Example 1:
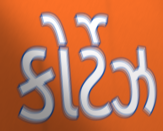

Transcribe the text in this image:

કોર્ટેઝ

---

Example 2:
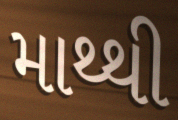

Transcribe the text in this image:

માથ્થી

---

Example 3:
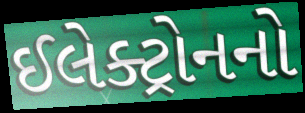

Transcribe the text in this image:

ઈલેક્ટ્રોનનો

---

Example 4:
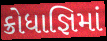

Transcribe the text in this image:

ક્રોધાજ્ઞિમાં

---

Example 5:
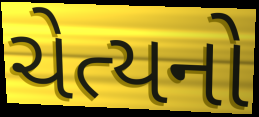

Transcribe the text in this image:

ચેત્યનો